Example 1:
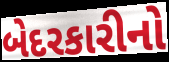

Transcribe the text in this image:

બેદરકારીનો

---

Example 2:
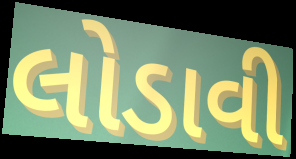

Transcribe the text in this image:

લોડાવી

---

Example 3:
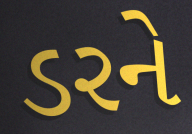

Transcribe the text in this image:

ડરને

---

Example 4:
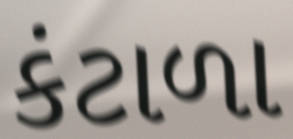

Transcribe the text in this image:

કંટાળા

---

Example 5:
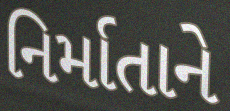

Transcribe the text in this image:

નિર્માતાને